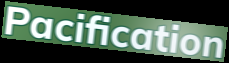
Pacification